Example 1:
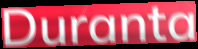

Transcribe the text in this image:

Duranta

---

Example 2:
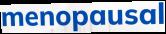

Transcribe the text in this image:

menopausal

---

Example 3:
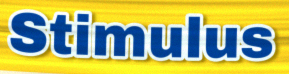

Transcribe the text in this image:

Stimulus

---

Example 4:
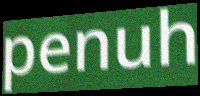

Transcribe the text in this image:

penuh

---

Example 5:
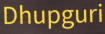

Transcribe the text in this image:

Dhupguri